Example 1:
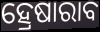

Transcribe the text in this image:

ହ୍ରେଷାରାବ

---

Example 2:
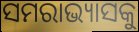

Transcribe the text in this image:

ସମରାଭ୍ୟାସକୁ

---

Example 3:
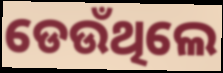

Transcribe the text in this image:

ଡେଉଁଥିଲେ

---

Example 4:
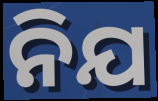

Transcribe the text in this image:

ନିଯ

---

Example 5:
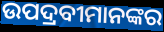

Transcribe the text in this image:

ଉପଦ୍ରବୀମାନଙ୍କର